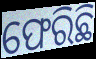
ଫେରିଛି